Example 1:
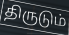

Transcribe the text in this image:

திருடும்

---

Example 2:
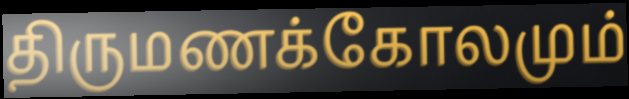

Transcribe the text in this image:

திருமணக்கோலமும்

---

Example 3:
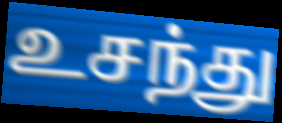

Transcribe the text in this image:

உசந்து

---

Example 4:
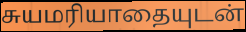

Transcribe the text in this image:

சுயமரியாதையுடன்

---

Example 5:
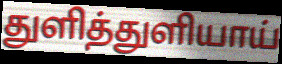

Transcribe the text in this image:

துளித்துளியாய்